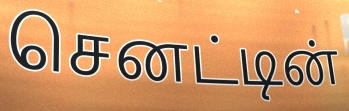
செனட்டின்